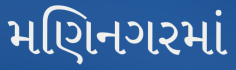
મણિનગરમાં